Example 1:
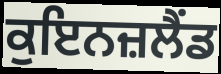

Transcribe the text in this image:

ਕੁਇਨਜ਼ਲੈਂਡ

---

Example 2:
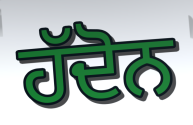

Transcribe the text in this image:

ਹੱਦੋਨ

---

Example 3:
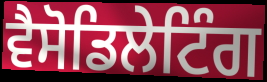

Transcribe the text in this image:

ਵੈਸੋਡਿਲੇਟਿੰਗ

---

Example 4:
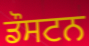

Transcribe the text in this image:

ਡੌਸਟਨ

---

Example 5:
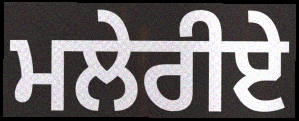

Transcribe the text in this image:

ਮਲੇਰੀਏ